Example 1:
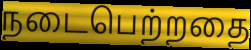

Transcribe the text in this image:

நடைபெற்றதை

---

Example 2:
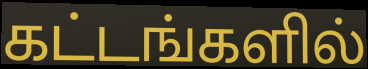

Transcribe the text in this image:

கட்டங்களில்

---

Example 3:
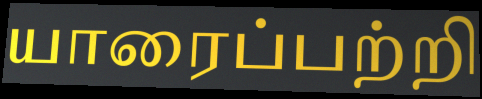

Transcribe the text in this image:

யாரைப்பற்றி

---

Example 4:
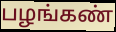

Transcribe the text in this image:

பழங்கண்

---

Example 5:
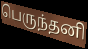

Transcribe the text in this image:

பெருந்தனி